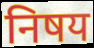
निषय